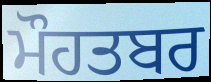
ਮੌਹਤਬਰ